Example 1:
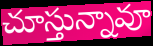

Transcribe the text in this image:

చూస్తున్నావూ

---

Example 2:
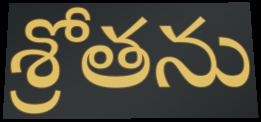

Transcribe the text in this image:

శ్రోతను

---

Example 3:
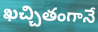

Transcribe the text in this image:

ఖచ్చితంగానే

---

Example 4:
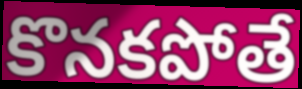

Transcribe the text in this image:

కొనకపోతే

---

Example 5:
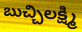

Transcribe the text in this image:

బుచ్చిలక్ష్మి